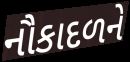
નૌકાદળને